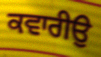
ਕਵਾਰੀਉ